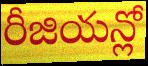
రీజియన్లో